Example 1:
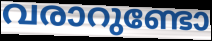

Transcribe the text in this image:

വരാറുണ്ടോ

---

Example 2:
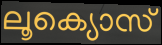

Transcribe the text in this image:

ലൂക്യൊസ്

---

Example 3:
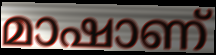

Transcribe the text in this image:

മാഷാണ്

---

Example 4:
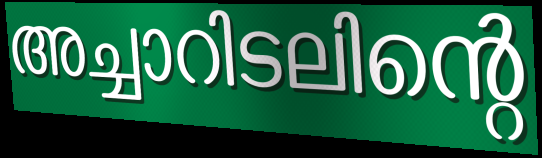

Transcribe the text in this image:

അച്ചാറിടലിന്റെ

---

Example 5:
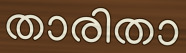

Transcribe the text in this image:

താരിതാ